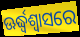
ଊର୍ଦ୍ଧ୍ୱଶ୍ୱାସରେ